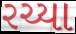
રચ્યા